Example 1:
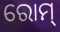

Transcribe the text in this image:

ରୋମ୍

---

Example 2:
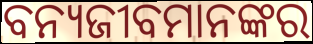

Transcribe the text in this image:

ବନ୍ୟଜୀବମାନଙ୍କର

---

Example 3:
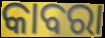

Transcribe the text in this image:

କାବରା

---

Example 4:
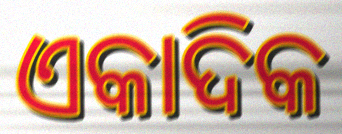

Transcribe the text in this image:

ଏକାଦିକ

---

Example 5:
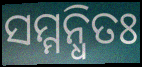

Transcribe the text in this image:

ସମ୍ମନ୍ଧିତଃ